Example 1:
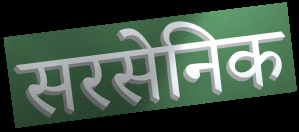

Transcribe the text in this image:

सरसेनिक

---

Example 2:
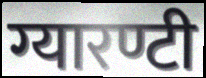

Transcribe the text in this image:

ग्यारण्टी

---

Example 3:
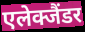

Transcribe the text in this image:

एलेक्जैंडर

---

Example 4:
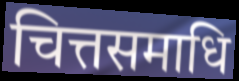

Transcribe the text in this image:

चित्तसमाधि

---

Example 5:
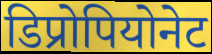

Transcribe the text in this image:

डिप्रोपियोनेट